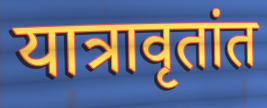
यात्रावृतांत